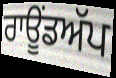
ਰਾਊਂਡਅੱਪ